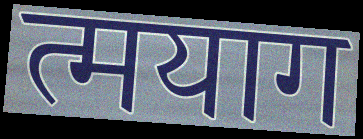
त्मयाग